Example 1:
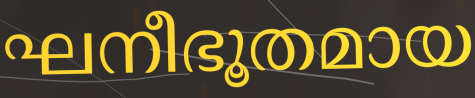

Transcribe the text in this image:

ഘനീഭൂതമായ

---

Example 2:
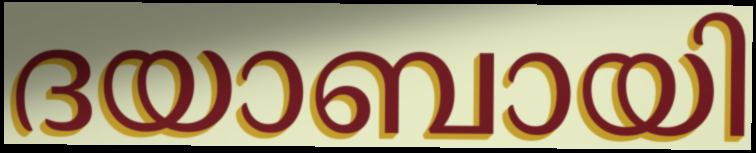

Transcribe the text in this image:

ദയാബായി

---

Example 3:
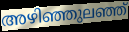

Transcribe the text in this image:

അഴിഞ്ഞുലഞ്ഞ്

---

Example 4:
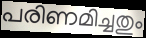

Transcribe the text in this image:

പരിണമിച്ചതും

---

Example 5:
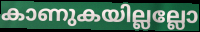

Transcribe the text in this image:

കാണുകയില്ലല്ലോ